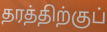
தரத்திற்குப்